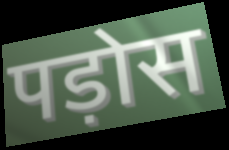
पड़ोस